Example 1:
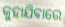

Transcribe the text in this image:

କୁହାଯିଵାରେ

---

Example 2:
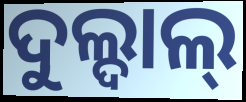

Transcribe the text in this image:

ଦୁଲ୍ଦାଲ୍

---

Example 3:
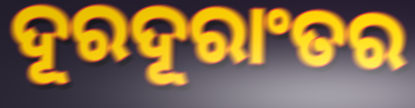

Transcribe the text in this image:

ଦୂରଦୂରାଂତର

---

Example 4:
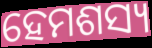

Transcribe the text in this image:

ହେମଶସ୍ୟ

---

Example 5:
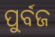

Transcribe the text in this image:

ପୁର୍ବଜ